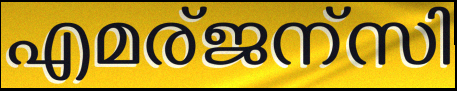
എമര്ജന്സി